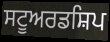
ਸਟੂਅਰਡਸ਼ਿਪ